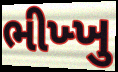
ભીખ્ખુ